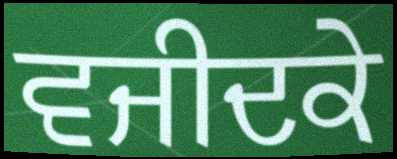
ਵਜੀਦਕੇ